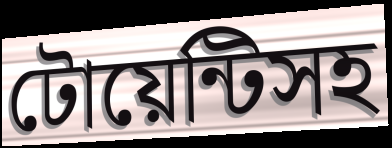
টোয়েন্টিসহ